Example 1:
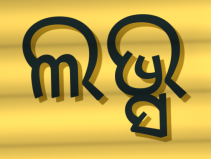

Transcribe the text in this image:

ଲଭ୍ସ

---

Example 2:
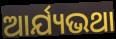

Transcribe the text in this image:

ଆର୍ଯ୍ୟଭଥା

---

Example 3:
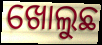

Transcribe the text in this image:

ଖୋଲୁଛ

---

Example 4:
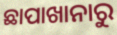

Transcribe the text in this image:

ଛାପାଖାନାରୁ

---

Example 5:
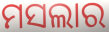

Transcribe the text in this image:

ମସଲାର